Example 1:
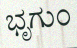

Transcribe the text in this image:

ಭೃಗುಂ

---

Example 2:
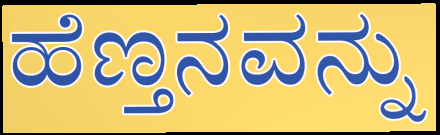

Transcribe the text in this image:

ಹೆಣ್ತನವನ್ನು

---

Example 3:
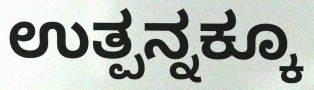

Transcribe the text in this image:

ಉತ್ಪನ್ನಕ್ಕೂ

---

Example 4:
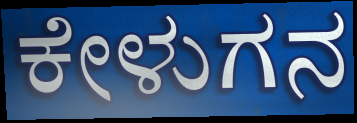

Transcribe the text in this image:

ಕೇಳುಗನ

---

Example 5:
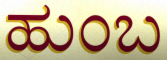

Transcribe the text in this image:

ಹುಂಬ